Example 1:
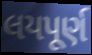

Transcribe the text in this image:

લયપૂર્ણ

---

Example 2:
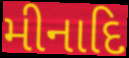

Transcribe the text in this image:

મીનાદિ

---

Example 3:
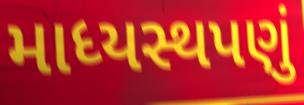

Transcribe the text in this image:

માધ્યસ્થપણું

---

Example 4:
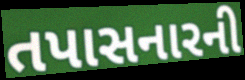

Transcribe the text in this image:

તપાસનારની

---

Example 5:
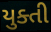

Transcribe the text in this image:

યુક્તી